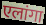
एलांगा